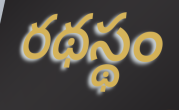
రథస్థం